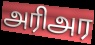
அரிஅர